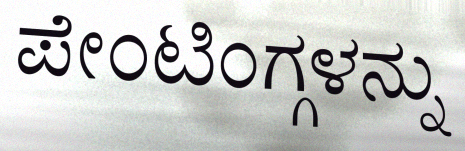
ಪೇಂಟಿಂಗ್ಗಳನ್ನು